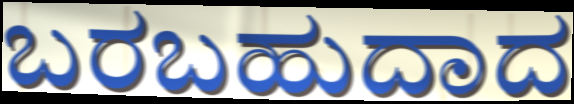
ಬರಬಹುದಾದ